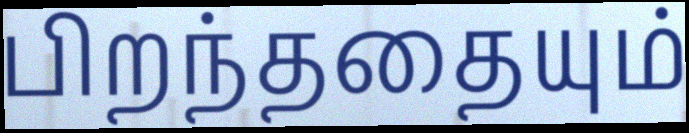
பிறந்ததையும்